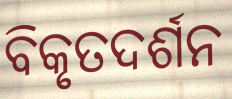
ବିକୃତଦର୍ଶନ